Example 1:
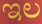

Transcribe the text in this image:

ಇಲ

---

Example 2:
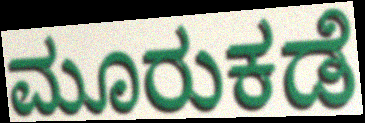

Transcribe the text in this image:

ಮೂರುಕಡೆ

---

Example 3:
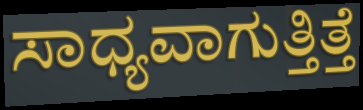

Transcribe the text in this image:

ಸಾಧ್ಯವಾಗುತ್ತಿತ್ತೆ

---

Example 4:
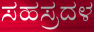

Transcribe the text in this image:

ಸಹಸ್ರದಳ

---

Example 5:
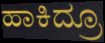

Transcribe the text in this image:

ಹಾಕಿದ್ರೂ